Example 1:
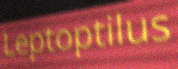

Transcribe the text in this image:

Leptoptilus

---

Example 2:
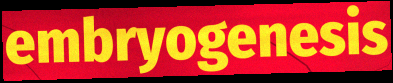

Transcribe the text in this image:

embryogenesis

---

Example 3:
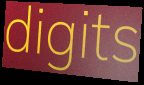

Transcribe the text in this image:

digits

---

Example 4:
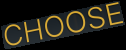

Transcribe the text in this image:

CHOOSE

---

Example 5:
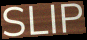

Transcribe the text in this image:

SLIP